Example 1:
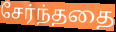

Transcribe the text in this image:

சேர்ந்ததை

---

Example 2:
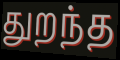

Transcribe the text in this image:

துறந்த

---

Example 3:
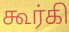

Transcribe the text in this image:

கூர்கி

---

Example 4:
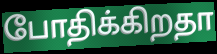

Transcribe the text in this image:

போதிக்கிறதா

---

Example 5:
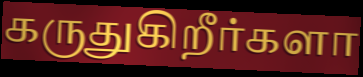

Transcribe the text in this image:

கருதுகிறீர்களா